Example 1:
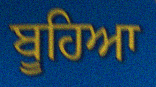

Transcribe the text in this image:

ਬੂਹਿਆ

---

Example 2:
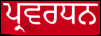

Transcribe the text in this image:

ਪ੍ਰਵਰਧਨ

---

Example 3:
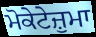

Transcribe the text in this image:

ਮੋਕੇਟੇਜ਼ੁਮਾ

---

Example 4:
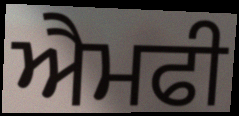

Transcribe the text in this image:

ਐਮਫੀ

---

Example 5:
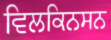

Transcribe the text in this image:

ਵਿਲਕਿਨਸਨ